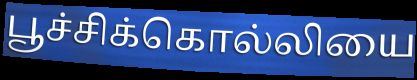
பூச்சிக்கொல்லியை